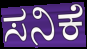
ಸನಿಕೆ